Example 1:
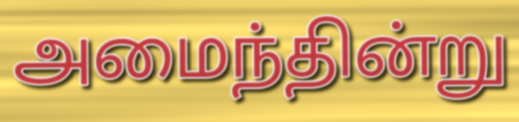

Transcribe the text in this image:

அமைந்தின்று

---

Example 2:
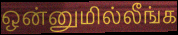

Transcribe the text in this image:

ஒன்னுமில்லீங்க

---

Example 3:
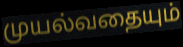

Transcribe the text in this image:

முயல்வதையும்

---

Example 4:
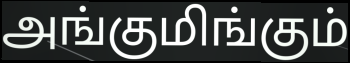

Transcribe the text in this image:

அங்குமிங்கும்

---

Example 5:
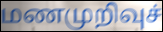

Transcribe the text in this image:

மணமுறிவுச்